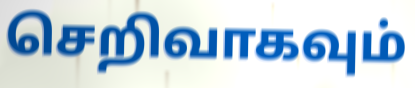
செறிவாகவும்